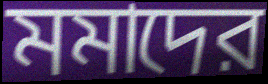
মমাদের